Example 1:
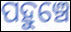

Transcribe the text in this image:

ପହୁଞ୍ଚେ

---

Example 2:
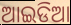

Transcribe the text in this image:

ଆଇଡିଆ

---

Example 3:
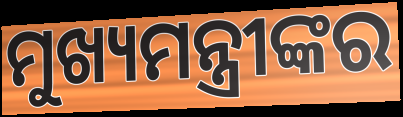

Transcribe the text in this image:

ମୁଖ୍ୟମନ୍ତ୍ରୀଙ୍କର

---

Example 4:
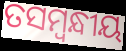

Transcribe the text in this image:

ତସମ୍ବନ୍ଧୀୟ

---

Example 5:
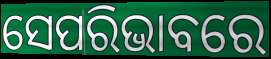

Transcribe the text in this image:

ସେପରିଭାବରେ